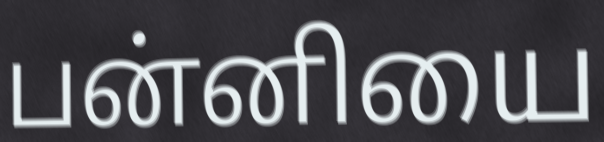
பன்னியை